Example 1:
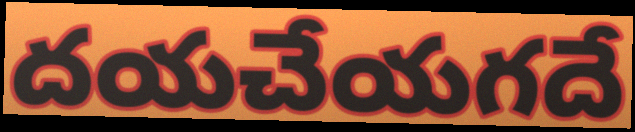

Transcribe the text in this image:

దయచేయగదే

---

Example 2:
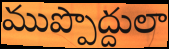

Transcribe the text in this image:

ముప్పొద్దులా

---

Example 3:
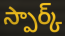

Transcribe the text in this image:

స్పార్క్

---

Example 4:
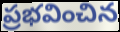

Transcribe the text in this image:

ప్రభవించిన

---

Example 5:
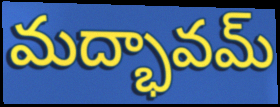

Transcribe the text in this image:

మద్భావమ్